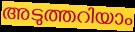
അടുത്തറിയാം